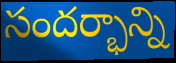
సందర్భాన్ని